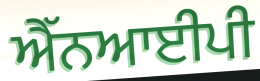
ਐੱਨਆਈਪੀ